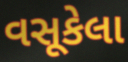
વસૂકેલા